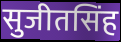
सुजीतसिंह